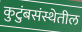
कुटुंबसंस्थेतील